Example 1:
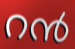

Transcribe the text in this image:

റൻ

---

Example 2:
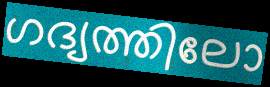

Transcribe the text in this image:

ഗദ്യത്തിലോ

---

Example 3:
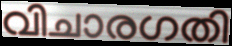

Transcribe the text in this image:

വിചാരഗതി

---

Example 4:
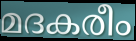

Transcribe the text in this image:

മദകരീം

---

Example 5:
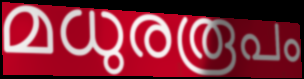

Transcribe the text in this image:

മധുരരൂപം